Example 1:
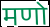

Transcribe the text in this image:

मणो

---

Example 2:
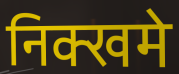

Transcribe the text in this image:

निक्खमे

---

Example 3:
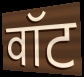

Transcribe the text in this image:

वॉट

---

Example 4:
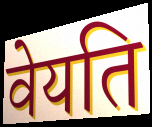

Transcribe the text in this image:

वेयति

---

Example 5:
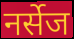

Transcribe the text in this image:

नर्सेज